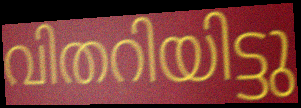
വിതറിയിട്ടു